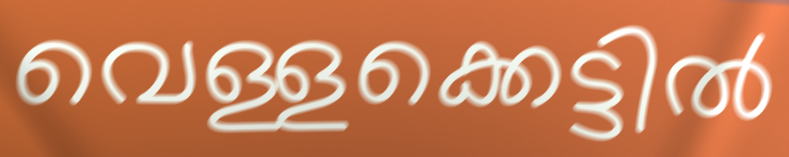
വെള്ളക്കെട്ടിൽ